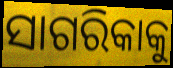
ସାଗରିକାକୁ